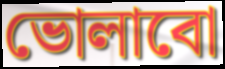
ভোলাবো